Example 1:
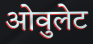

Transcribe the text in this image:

ओवुलेट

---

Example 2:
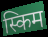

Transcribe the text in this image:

स्किम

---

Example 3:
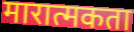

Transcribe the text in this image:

मारात्मकता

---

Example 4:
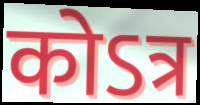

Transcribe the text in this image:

कोऽत्र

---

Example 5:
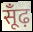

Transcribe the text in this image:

सूँढ़